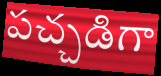
పచ్చడిగా